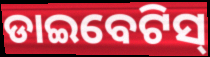
ଡାଇବେଟିସ୍